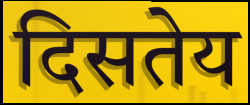
दिसतेय